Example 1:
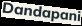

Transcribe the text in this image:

Dandapani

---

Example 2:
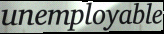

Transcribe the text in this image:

unemployable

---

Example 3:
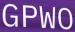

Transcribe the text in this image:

GPWO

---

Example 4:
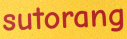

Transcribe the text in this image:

sutorang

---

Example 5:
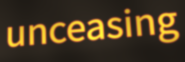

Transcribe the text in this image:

unceasing